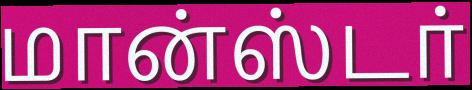
மான்ஸ்டர்